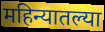
महिन्यातल्या